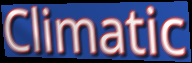
Climatic